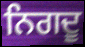
ਨਿਗਦੂ